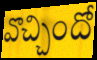
వొచ్చిందో